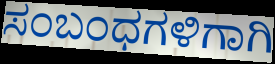
ಸಂಬಂಧಗಳಿಗಾಗಿ